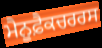
ਮੈਨੂਫ਼ੈਕਚਰਰਸ